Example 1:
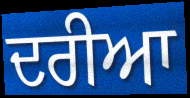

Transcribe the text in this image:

ਦਰੀਆ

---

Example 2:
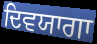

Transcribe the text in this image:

ਦਿਵਯਾਗਾ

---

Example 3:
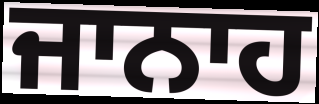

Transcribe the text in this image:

ਜਾਨਾਹ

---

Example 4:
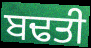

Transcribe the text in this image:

ਬਢਤੀ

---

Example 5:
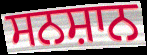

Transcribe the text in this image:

ਸਨਸ਼ਾਨ